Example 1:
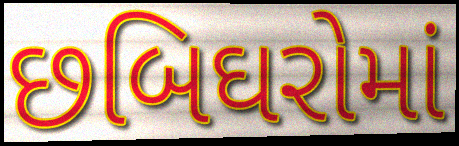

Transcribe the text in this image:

છબિઘરોમાં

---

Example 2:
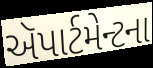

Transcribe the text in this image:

ઍપાર્ટમેન્ટના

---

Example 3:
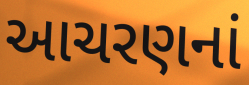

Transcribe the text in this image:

આચરણનાં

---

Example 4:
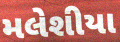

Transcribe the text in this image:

મલેશીયા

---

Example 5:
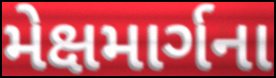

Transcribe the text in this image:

મેક્ષમાર્ગના